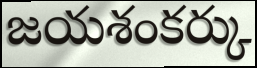
జయశంకర్కు